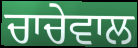
ਚਾਚੇਵਾਲ